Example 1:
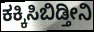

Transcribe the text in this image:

ಕಕ್ಕಿಸಿಬಿಡ್ತೀನಿ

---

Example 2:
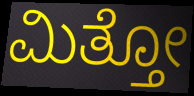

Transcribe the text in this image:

ಮಿತ್ತೋ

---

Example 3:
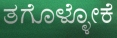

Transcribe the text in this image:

ತಗೊಳ್ಳೋಕೆ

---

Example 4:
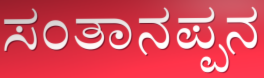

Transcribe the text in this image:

ಸಂತಾನಪ್ಪನ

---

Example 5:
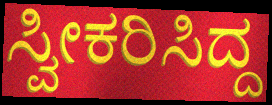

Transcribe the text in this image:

ಸ್ವೀಕರಿಸಿದ್ದ